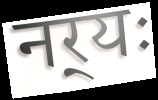
नर्यः